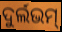
ଦୁର୍ଲଭମ୍